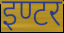
इण्टर